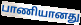
பாணியானது